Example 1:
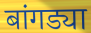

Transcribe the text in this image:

बांगड्या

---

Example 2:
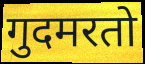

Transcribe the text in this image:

गुदमरतो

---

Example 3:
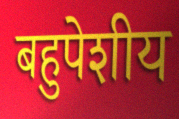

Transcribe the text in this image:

बहुपेशीय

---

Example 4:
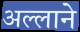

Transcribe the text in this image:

अल्लाने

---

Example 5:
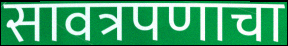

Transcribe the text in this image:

सावत्रपणाचा